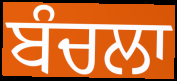
ਬੰਚਲਾ